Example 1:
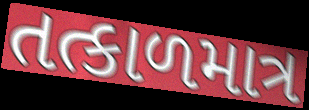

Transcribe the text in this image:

તત્કાળમાત્ર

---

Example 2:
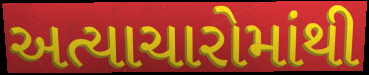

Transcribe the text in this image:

અત્યાચારોમાંથી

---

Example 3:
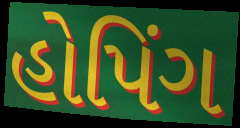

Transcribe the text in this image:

હોપિંગ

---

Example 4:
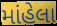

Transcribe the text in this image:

માંહેલા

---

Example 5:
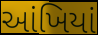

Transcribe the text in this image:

આંખિયાં